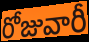
రోజువారీ